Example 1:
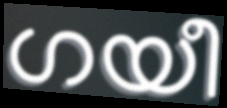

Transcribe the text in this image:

ഗയീ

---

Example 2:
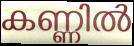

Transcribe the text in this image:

കണ്ണിൽ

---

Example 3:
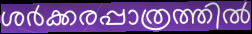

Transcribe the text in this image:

ശർക്കരപ്പാത്രത്തിൽ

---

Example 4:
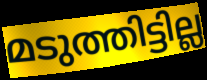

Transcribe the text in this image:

മടുത്തിട്ടില്ല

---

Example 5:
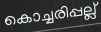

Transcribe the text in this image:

കൊച്ചരിപ്പല്ല്